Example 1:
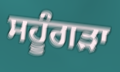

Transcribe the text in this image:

ਸਹੂੰਗੜਾ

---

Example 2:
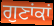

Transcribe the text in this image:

ਗੁਣਾਂਕਾਂ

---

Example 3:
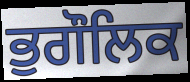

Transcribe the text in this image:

ਭੁਗੌਲਿਕ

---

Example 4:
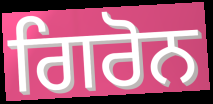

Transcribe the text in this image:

ਗਿਰੋਨ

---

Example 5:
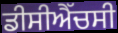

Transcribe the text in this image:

ਡੀਸੀਐੱਚਸੀ